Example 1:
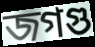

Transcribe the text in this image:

জগগু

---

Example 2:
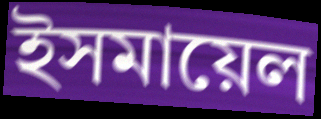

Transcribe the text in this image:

ইসমায়েল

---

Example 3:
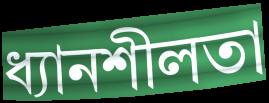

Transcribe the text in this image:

ধ্যানশীলতা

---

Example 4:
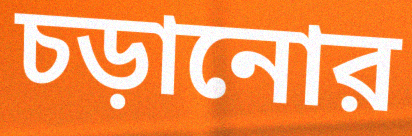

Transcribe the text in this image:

চড়ানোর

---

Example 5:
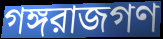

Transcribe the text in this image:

গঙ্গরাজগণ